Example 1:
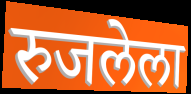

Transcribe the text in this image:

रुजलेला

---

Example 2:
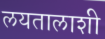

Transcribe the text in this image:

लयतालाशी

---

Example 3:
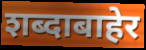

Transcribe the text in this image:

शब्दाबाहेर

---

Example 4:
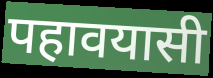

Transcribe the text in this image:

पहावयासी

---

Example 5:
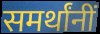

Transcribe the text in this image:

समर्थांनीं